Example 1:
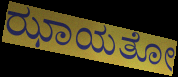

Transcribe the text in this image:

ಝಾಯತೋ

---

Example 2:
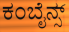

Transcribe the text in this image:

ಕಂಬೈನ್ಸ್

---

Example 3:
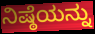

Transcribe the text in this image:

ನಿಷ್ಠೆಯನ್ನು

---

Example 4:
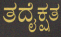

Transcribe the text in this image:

ತದೈಕ್ಷತ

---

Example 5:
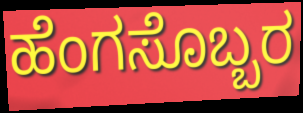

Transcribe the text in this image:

ಹೆಂಗಸೊಬ್ಬರ